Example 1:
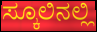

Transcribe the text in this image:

ಸ್ಕೂಲಿನಲ್ಲಿ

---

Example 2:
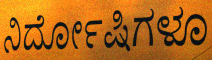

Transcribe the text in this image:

ನಿರ್ದೋಷಿಗಳೂ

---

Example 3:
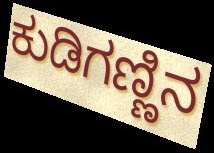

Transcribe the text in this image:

ಕುಡಿಗಣ್ಣಿನ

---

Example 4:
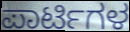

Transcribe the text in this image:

ಪಾರ್ಟಿಗಳ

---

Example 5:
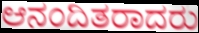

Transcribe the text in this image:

ಆನಂದಿತರಾದರು